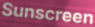
Sunscreen